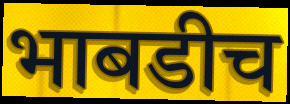
भाबडीच